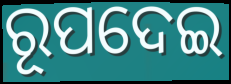
ରୂପଦେଇ